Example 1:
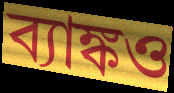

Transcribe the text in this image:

ব্যাঙ্কও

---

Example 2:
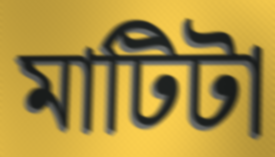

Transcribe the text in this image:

মাটিটা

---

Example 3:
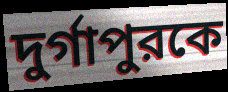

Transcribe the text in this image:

দুর্গাপুরকে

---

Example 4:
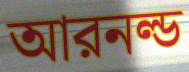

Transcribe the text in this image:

আরনল্ড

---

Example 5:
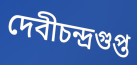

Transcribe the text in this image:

দেবীচন্দ্রগুপ্ত